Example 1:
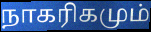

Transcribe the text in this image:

நாகரிகமும்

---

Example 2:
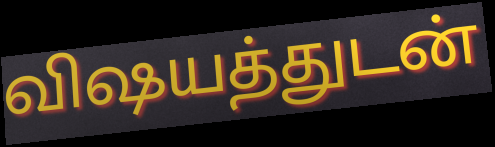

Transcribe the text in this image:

விஷயத்துடன்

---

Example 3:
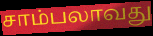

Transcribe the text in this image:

சாம்பலாவது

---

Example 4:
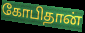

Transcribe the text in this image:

கோபிதான்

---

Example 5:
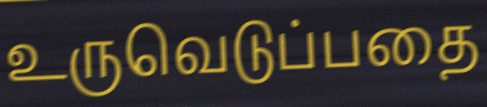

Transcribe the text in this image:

உருவெடுப்பதை